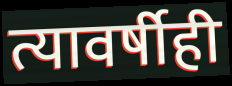
त्यावर्षीही